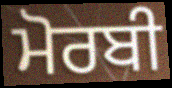
ਮੋਰਬੀ